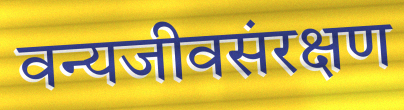
वन्यजीवसंरक्षण